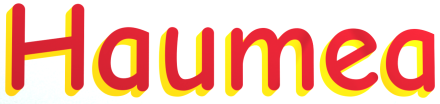
Haumea